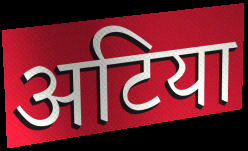
अटिया